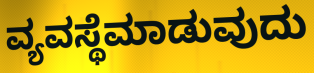
ವ್ಯವಸ್ಥೆಮಾಡುವುದು